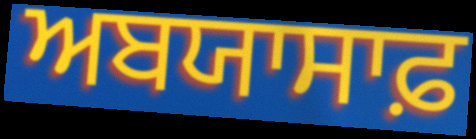
ਅਬਯਾਸਾਫ਼